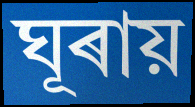
ঘূৰায়